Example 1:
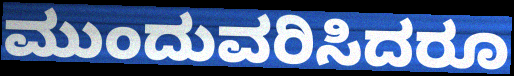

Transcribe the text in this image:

ಮುಂದುವರಿಸಿದರೂ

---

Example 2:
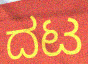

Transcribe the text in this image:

ದಟ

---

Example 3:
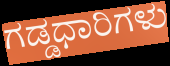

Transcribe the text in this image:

ಗಡ್ಡಧಾರಿಗಳು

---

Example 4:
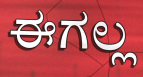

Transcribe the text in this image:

ಈಗಲ್ಲ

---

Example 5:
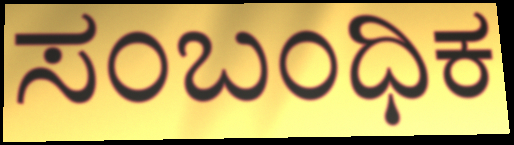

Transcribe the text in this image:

ಸಂಬಂಧಿಕ